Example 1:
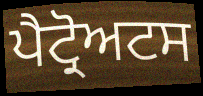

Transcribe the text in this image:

ਪੈਟ੍ਰੋਅਟਸ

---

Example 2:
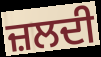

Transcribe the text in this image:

ਜ਼ਲਦੀ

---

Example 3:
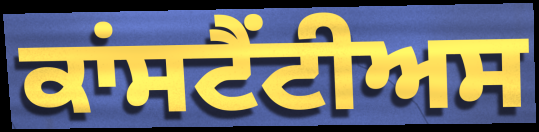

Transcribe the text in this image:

ਕਾਂਸਟੈਂਟੀਅਸ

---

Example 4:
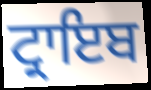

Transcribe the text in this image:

ਟ੍ਰਾਇਬ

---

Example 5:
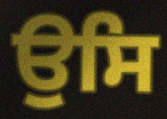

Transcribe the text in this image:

ਉਸਿ